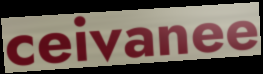
ceivanee